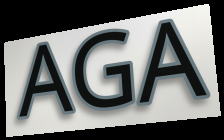
AGA